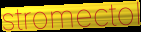
stromectol